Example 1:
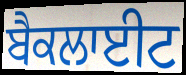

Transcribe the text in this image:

ਬੈਕਲਾਈਟ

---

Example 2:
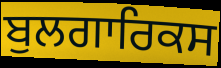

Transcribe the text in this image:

ਬੁਲਗਾਰਿਕਸ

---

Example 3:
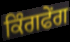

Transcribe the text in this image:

ਕਿੰਗਫੇਂਗ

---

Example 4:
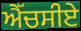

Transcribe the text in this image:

ਐੱਚਸੀਏ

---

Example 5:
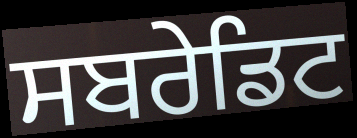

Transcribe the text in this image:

ਸਬਰੇਡਿਟ